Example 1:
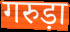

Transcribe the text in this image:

गरुड़ा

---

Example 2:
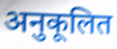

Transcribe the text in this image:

अनुकूलित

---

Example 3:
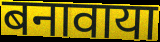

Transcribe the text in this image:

बनावाया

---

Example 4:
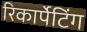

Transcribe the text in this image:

रिकार्पेटिंग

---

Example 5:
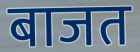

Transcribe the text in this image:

बाजत